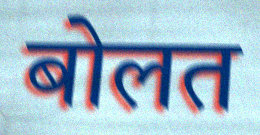
बोलत